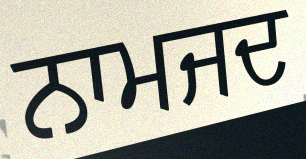
ਨਾਮਜਦ